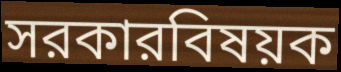
সরকারবিষয়ক